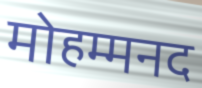
मोहम्मनद